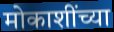
मोकाशींच्या